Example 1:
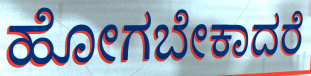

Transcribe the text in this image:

ಹೋಗಬೇಕಾದರೆ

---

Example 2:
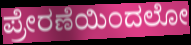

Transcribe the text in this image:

ಪ್ರೇರಣೆಯಿಂದಲೋ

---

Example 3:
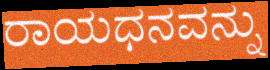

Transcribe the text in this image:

ರಾಯಧನವನ್ನು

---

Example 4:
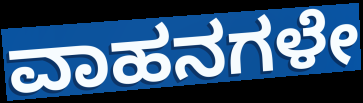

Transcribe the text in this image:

ವಾಹನಗಳೇ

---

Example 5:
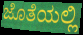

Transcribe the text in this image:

ಜೊತೆಯಲ್ಲಿ